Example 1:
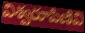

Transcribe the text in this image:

విశ్వరూపిణివి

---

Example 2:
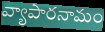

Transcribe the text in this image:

వ్యాపారనామం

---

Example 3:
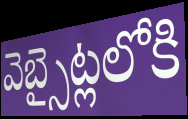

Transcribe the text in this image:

వెబ్సైట్లలోకి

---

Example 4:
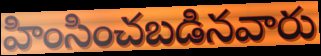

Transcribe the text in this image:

హింసించబడినవారు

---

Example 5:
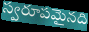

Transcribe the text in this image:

స్వరూపమైనది